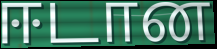
ஈடான